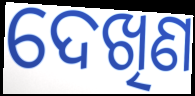
ଦେଖିଣ